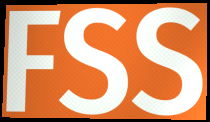
FSS